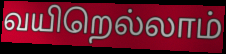
வயிறெல்லாம்